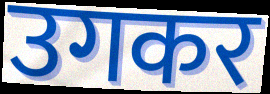
उगकर